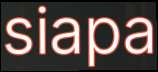
siapa